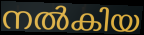
നൽകിയ